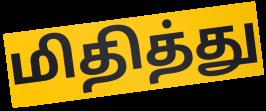
மிதித்து